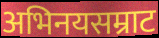
अभिनयसम्राट